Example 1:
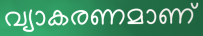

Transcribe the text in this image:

വ്യാകരണമാണ്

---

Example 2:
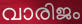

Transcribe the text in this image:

വാരിജം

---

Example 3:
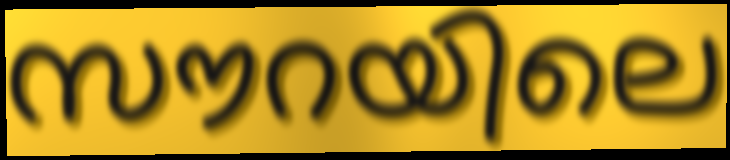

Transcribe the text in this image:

സൗറയിലെ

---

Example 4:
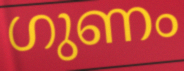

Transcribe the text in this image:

ഗുണം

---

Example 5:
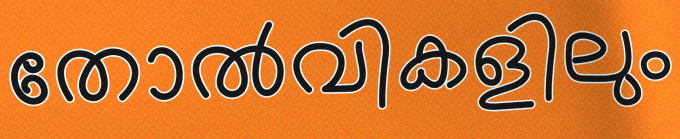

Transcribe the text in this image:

തോൽവികളിലും